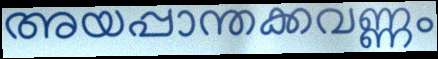
അയപ്പാന്തക്കവണ്ണം